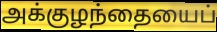
அக்குழந்தையைப்